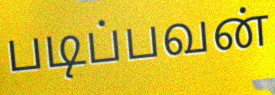
படிப்பவன்